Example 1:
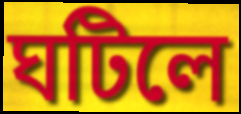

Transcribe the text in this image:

ঘটিলে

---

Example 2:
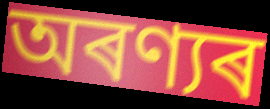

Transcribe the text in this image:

অৰণ্যৰ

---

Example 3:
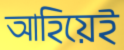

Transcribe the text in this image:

আহিয়েই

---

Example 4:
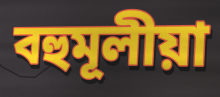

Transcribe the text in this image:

বহুমূলীয়া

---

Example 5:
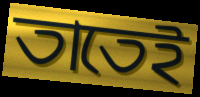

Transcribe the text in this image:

তাতেই